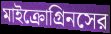
মাইক্রোগ্রিনসের